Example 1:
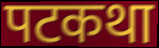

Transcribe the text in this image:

पटकथा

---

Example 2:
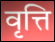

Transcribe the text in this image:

वृत्ति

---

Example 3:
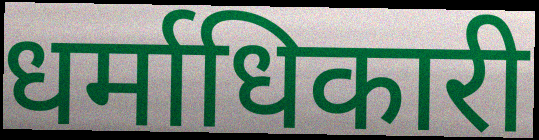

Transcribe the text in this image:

धर्माधिकारी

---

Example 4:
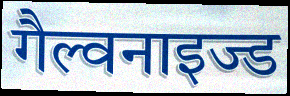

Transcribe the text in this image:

गैल्वनाइज्ड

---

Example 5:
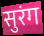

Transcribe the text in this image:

सुरंग